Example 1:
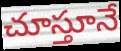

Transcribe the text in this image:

చూస్తూనే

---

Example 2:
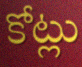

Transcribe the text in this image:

కోట్లు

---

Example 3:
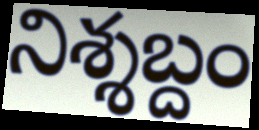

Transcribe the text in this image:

నిశ్శబ్దం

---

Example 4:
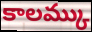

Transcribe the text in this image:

కాలమ్కు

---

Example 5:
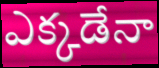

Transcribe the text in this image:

ఎక్కడేనా